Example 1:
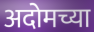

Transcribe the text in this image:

अदोमच्या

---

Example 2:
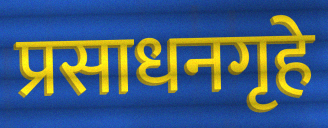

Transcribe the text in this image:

प्रसाधनगृहे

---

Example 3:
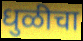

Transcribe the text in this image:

धुळीचा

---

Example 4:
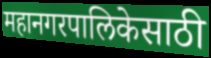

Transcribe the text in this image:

महानगरपालिकेसाठी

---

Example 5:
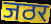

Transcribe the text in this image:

जठर